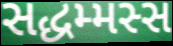
સદ્ધમ્મસ્સ